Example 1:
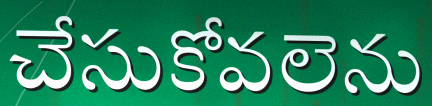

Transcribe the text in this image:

చేసుకోవలెను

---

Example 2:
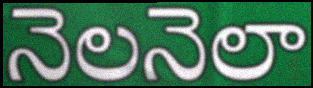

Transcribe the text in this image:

నెలనెలా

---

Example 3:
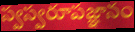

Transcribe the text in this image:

స్వస్వరూపజ్ఞానం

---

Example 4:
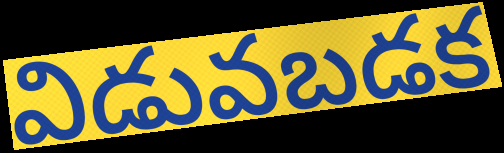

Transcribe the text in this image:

విడువబడక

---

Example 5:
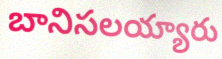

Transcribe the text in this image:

బానిసలయ్యారు